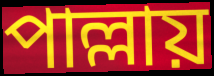
পাল্লায়